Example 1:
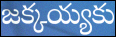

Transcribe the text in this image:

జక్కయ్యకు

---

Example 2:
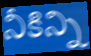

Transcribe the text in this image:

నీకిన్ని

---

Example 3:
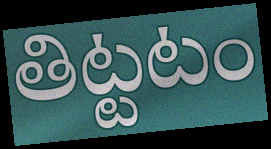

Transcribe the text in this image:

తిట్టటం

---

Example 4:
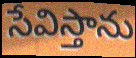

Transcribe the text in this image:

సేవిస్తాను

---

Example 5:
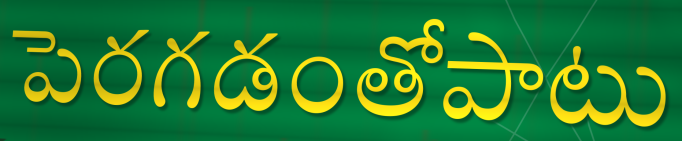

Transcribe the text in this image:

పెరగడంతోపాటు